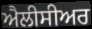
ਐਲੀਸੀਅਰ